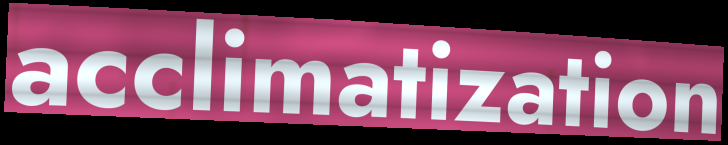
acclimatization